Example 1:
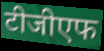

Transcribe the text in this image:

टीजीएफ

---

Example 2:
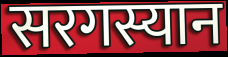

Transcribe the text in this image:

सरगस्यान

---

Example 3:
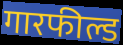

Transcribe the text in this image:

गारफील्ड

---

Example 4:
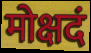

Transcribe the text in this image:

मोक्षदं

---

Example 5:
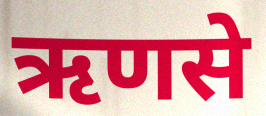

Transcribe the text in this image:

ऋणसे